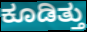
ಕೂಡಿತ್ತು